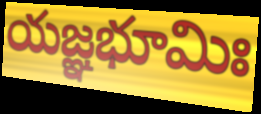
యజ్ఞభూమిః